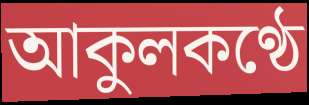
আকুলকণ্ঠে